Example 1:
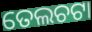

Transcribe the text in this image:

ତେଲଚଟା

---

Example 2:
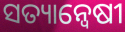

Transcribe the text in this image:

ସତ୍ୟାନ୍ଵେଷୀ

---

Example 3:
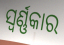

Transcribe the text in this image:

ସ୍ୱର୍ଣ୍ଣକାର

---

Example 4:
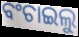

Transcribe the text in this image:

ବଂଚାଇଲୁ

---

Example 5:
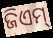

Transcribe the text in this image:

ଜିଏମ୍